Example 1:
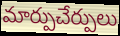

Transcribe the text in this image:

మార్పుచేర్పులు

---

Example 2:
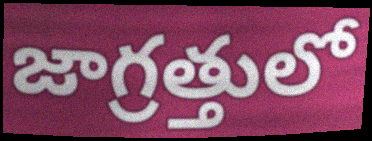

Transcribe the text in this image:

జాగ్రత్తులో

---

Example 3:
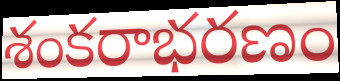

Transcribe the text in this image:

శంకరాభరణం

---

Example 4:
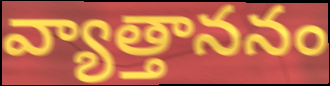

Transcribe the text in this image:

వ్యాత్తాననం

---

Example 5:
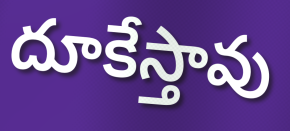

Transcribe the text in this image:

దూకేస్తావు